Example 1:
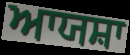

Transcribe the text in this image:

ਆਯਸ਼ਾ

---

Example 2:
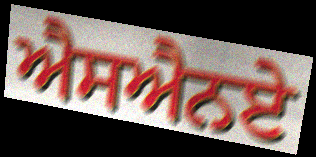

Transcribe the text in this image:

ਐਸਐਨਏ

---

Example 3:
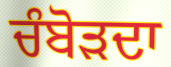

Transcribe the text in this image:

ਚੰਬੋੜਦਾ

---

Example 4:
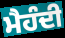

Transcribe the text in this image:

ਮੈਹੰਦੀ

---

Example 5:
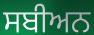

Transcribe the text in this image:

ਸਬੀਅਨ